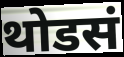
थोडसं